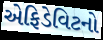
એફિડેવિટનો